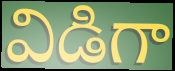
విడిగా